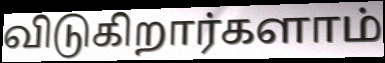
விடுகிறார்களாம்